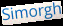
Simorgh